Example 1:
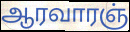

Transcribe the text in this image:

ஆரவாரஞ்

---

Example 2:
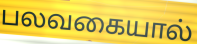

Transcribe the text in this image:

பலவகையால்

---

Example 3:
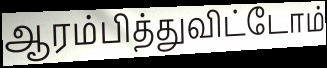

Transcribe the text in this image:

ஆரம்பித்துவிட்டோம்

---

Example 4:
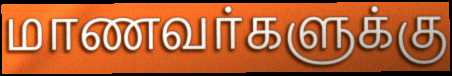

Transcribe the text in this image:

மாணவர்களுக்கு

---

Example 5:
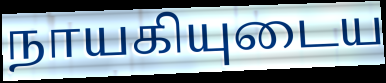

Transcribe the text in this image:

நாயகியுடைய